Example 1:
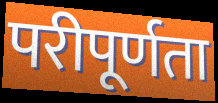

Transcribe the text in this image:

परीपूर्णता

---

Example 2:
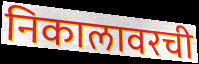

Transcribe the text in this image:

निकालावरची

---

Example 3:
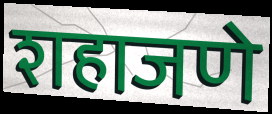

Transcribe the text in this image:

शहाजणे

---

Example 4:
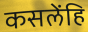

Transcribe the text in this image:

कसलेंहि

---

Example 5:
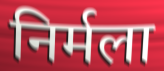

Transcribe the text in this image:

निर्मला